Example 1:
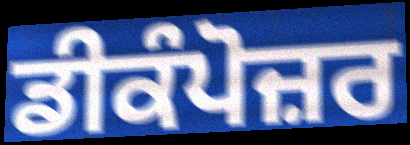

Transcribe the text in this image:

ਡੀਕੰਪੋਜ਼ਰ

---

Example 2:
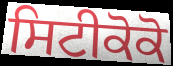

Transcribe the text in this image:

ਸਿਟੀਕੋਕੋ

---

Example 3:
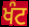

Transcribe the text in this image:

ਖੰਟ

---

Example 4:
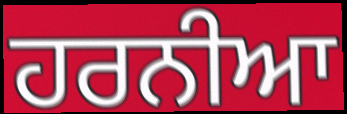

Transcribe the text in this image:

ਹਰਨੀਆ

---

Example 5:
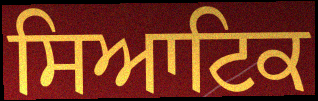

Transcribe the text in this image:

ਸਿਆਟਿਕ